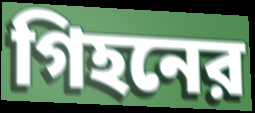
গিহনের